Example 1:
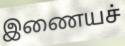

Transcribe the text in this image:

இணையச்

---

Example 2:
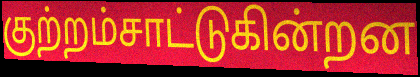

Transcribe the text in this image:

குற்றம்சாட்டுகின்றன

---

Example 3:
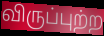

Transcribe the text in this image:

விருப்புற்ற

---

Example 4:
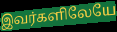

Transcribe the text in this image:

இவர்களிலேயே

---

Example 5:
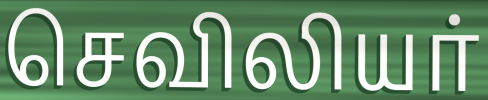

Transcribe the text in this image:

செவிலியர்